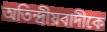
অতিন্দ্রীয়বাদীকে